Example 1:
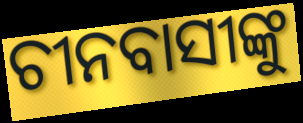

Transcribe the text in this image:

ଚୀନବାସୀଙ୍କୁ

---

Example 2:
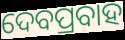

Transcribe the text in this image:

ଦେବପ୍ରବାହ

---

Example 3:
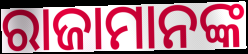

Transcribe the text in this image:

ରାଜାମାନଙ୍କ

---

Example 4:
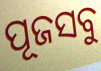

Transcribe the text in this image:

ପୂଜସବୁ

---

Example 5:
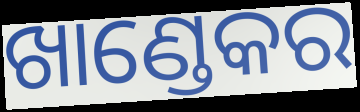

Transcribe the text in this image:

ଖାଣ୍ଡେକର